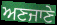
ਅਣਜਾਣੇ